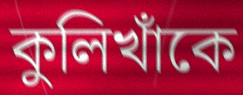
কুলিখাঁকে